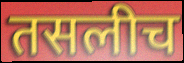
तसलीच